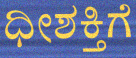
ಧೀಶಕ್ತಿಗೆ